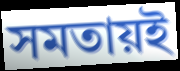
সমতায়ই